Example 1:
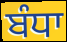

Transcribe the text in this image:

ਬੰਧਾ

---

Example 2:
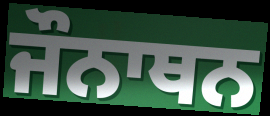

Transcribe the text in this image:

ਜੌਨਾਥਨ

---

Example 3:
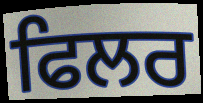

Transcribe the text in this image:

ਫਿਲਰ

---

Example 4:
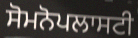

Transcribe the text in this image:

ਸੋਮਨੋਪਲਾਸਟੀ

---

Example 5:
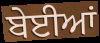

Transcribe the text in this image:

ਬੇਈਆਂ